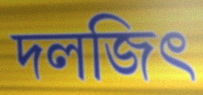
দলজিৎ